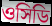
ওসিডি